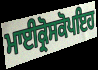
ਮਾਈਕ੍ਰੋਸਕੋਪਇਹ